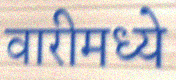
वारीमध्ये